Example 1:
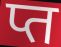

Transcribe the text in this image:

प्त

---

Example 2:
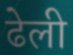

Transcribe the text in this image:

ढेली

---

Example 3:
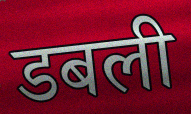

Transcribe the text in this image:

डबली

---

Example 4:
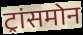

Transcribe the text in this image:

ट्रांसमोन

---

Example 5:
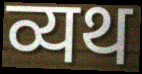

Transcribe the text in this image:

व्यथ